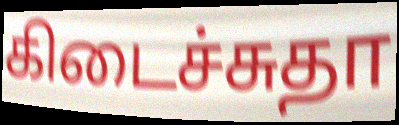
கிடைச்சுதா